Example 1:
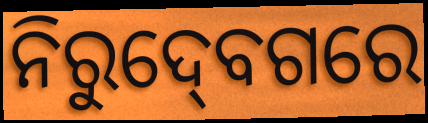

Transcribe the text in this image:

ନିରୁଦ୍‍ବେଗରେ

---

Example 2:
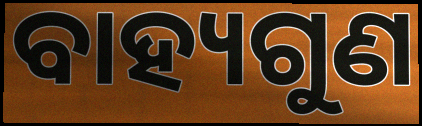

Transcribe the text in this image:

ବାହ୍ୟଗୁଣ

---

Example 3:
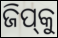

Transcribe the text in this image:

ଜିପ୍‌କୁ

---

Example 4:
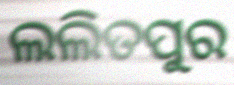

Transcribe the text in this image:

ଲଲିତପୁର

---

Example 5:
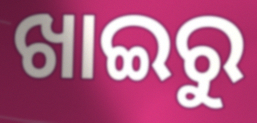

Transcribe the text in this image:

ଖାଇରୁ